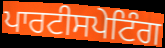
ਪਾਰਟੀਸਪੇਟਿੰਗ